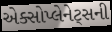
એક્સોપ્લેનેટ્સની